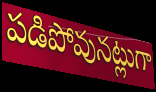
పడిపోవునట్లుగా